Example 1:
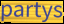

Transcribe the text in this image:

partys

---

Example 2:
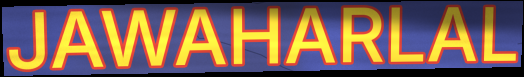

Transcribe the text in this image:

JAWAHARLAL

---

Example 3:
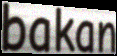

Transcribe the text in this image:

bakan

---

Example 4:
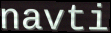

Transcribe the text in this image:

navti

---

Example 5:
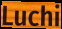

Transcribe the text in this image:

Luchi